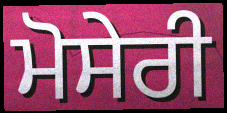
ਮੋਸੇਰੀ